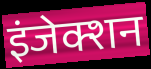
इंजेक्शन